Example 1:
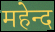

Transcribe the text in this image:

महेन्द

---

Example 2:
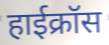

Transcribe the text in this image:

हाईक्रॉस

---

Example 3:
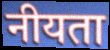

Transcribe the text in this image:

नीयता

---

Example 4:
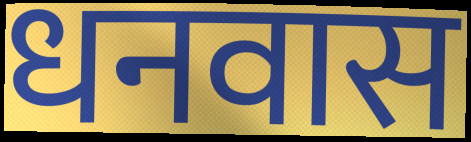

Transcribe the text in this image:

धनवास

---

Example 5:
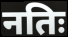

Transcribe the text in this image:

नतिः